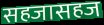
सहजासहज